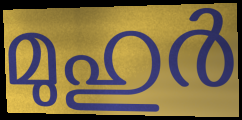
മുഹുർ